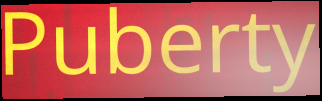
Puberty